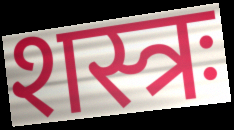
शस्त्रः